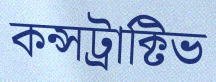
কন্সট্রাক্টিভ